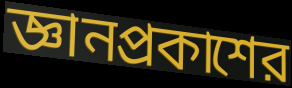
জ্ঞানপ্রকাশের